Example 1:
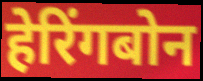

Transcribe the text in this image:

हेरिंगबोन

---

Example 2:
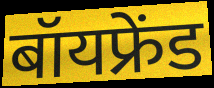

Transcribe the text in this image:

बॉयफ्रेंड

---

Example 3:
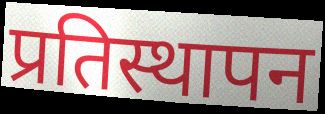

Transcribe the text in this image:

प्रतिस्थापन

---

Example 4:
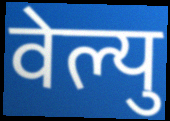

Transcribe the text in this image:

वेल्यु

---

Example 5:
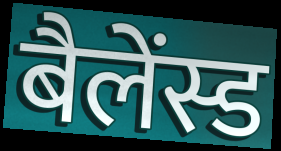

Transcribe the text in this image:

बैलेंस्ड